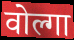
वोल्गा